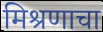
मिश्रणाचा